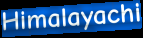
Himalayachi